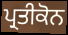
ਪ੍ਰਤੀਕੋਨ